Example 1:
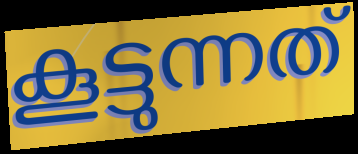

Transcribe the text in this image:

കൂട്ടുന്നത്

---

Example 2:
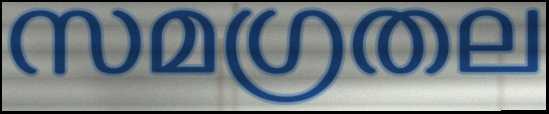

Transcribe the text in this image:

സമഗ്രതല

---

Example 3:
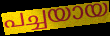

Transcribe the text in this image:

പച്ചയായ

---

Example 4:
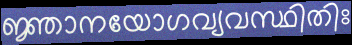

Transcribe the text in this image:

ജ്ഞാനയോഗവ്യവസ്ഥിതിഃ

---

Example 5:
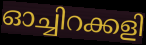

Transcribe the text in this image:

ഓച്ചിറക്കളി